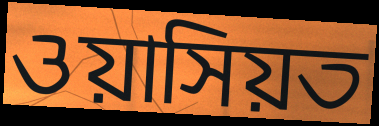
ওয়াসিয়ত